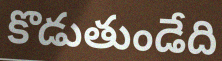
కొడుతుండేది